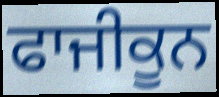
ਫਾਜੀਕੂਨ